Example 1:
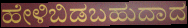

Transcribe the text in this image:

ಹೇಳಿಬಿಡಬಹುದಾದ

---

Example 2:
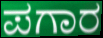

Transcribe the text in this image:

ಪಗಾರ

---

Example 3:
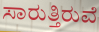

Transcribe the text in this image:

ಸಾರುತ್ತಿರುವೆ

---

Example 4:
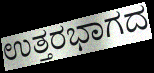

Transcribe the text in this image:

ಉತ್ತರಭಾಗದ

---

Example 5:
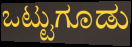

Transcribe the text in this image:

ಒಟ್ಟುಗೂಡು